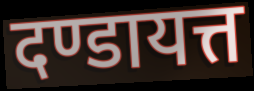
दण्डायत्त